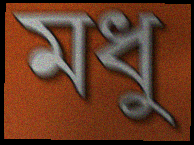
মধু